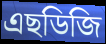
এছডিজি